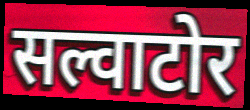
सल्वाटोर